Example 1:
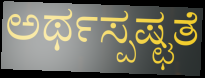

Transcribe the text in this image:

ಅರ್ಥಸ್ಪಷ್ಟತೆ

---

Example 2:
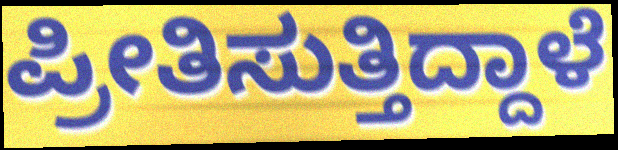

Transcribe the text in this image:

ಪ್ರೀತಿಸುತ್ತಿದ್ದಾಳೆ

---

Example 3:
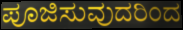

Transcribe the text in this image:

ಪೂಜಿಸುವುದರಿಂದ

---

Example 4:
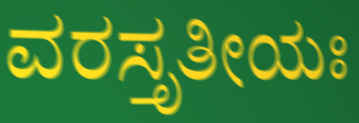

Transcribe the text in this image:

ವರಸ್ತೃತೀಯಃ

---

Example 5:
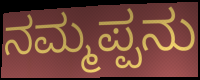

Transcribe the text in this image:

ನಮ್ಮಪ್ಪನು